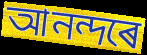
আনন্দৰে